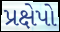
પ્રક્ષેપો